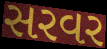
સરવર